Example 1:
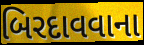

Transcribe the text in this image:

બિરદાવવાના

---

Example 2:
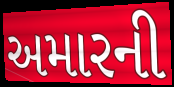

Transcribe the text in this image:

અમારની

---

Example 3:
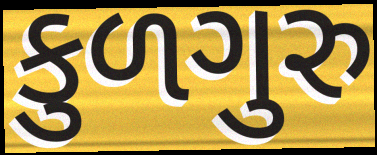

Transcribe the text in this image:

કુળગુરુ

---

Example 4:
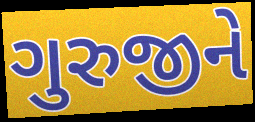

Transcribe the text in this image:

ગુરુજીને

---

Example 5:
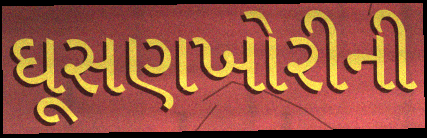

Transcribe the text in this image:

ઘૂસણખોરીની